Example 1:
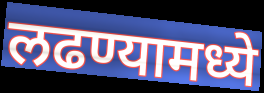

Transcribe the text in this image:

लढण्यामध्ये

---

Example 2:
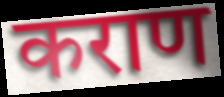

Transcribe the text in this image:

कराण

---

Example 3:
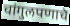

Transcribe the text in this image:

चांगुलपणाचे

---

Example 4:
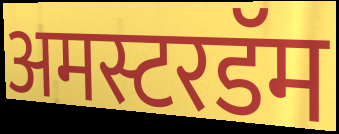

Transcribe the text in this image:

अमस्टरडॅम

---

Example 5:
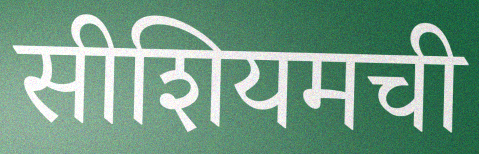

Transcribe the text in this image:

सीशियमची